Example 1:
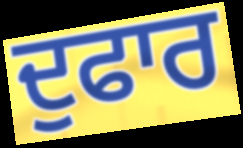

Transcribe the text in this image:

ਦੁਫਾਰ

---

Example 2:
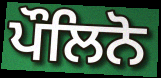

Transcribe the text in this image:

ਪੌਲਿਨੋ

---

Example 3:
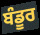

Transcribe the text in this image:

ਬੰਡੂਰ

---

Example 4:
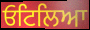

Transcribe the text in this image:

ਓਟਿਲਿਆ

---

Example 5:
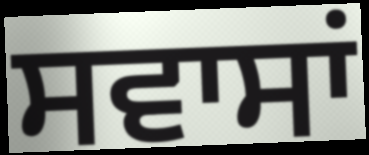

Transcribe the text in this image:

ਸਵਾਸਾਂ